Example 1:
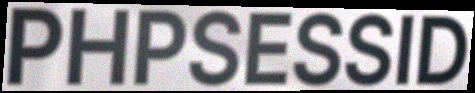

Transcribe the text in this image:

PHPSESSID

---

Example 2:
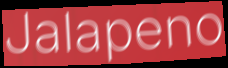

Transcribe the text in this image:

Jalapeno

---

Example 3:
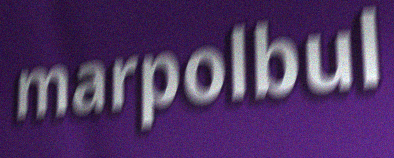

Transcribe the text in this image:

marpolbul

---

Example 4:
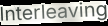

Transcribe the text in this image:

Interleaving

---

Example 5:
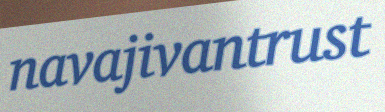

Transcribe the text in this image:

navajivantrust